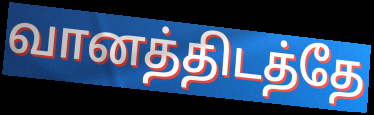
வானத்திடத்தே